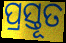
ପ୍ରସ୍ତୂତ